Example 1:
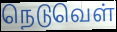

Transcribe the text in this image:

நெடுவெள்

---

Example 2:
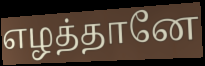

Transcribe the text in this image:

எழத்தானே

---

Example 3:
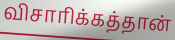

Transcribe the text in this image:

விசாரிக்கத்தான்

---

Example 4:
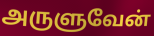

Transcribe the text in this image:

அருளுவேன்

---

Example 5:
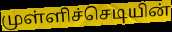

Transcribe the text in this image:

முள்ளிச்செடியின்